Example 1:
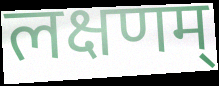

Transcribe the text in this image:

लक्षणम्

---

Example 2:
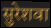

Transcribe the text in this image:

सुरेशवा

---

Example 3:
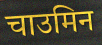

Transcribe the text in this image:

चाउमिन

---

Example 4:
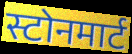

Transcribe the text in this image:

स्टोनमार्ट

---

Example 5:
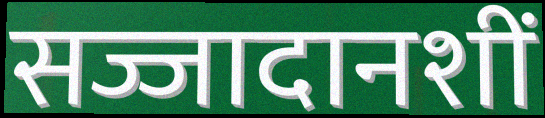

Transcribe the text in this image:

सज्जादानशीं